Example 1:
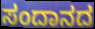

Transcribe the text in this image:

ಸಂದಾನದ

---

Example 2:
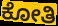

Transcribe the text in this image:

ಕೋತಿ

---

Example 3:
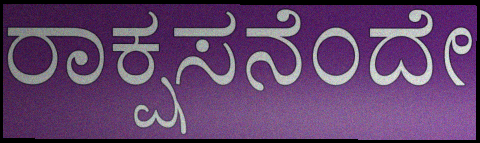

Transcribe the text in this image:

ರಾಕ್ಷಸನೆಂದೇ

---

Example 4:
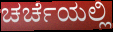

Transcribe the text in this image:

ಚರ್ಚೆಯಲ್ಲಿ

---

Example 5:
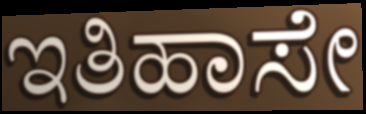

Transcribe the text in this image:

ಇತಿಹಾಸೇ